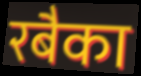
रबैका